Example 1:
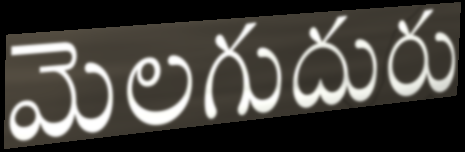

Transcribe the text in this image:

మెలగుదురు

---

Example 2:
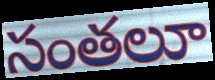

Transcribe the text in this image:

సంతలూ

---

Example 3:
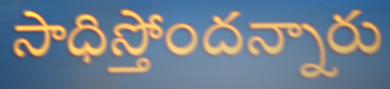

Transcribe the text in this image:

సాధిస్తోందన్నారు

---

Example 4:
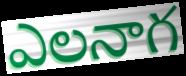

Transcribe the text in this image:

ఎలనాగ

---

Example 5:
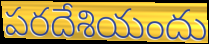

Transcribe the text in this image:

పరదేశియందు